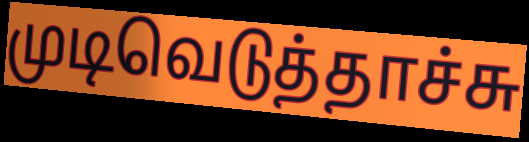
முடிவெடுத்தாச்சு